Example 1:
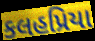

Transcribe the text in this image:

કલહપ્રિયા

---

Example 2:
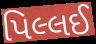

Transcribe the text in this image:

પિલ્લઈ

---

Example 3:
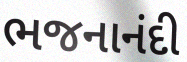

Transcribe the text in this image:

ભજનાનંદી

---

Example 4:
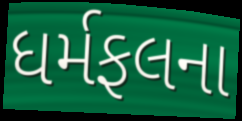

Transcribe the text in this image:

ધર્મફલના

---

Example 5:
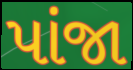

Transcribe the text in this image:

પાંજા